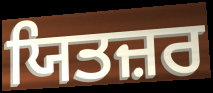
ਯਿਤਜ਼ਰ